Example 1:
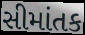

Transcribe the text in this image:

સીમાંતક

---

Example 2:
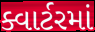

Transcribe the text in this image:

ક્વાર્ટરમાં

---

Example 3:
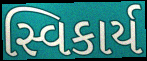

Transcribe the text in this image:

સ્વિકાર્ય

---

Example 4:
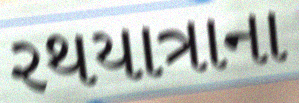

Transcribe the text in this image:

રથયાત્રાના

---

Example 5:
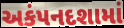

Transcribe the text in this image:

અકંપનદશામાં